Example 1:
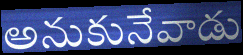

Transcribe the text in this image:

అనుకునేవాడు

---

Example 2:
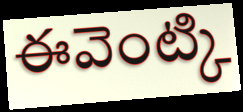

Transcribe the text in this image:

ఈవెంట్కి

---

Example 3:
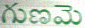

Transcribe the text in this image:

గుణమె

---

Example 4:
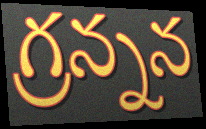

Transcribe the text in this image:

గ్రన్నన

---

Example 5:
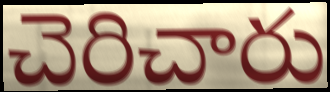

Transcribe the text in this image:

చెరిచారు